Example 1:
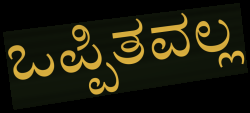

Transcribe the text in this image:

ಒಪ್ಪಿತವಲ್ಲ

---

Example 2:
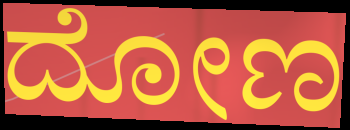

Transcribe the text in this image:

ದೋಣ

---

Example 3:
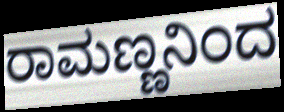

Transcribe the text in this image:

ರಾಮಣ್ಣನಿಂದ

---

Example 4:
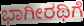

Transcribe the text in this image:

ಭಾಗೀರಥಿಗೆ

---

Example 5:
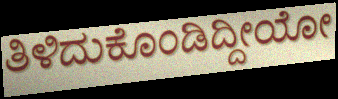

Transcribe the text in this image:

ತಿಳಿದುಕೊಂಡಿದ್ದೀಯೋ